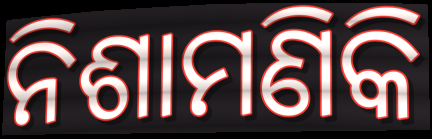
ନିଶାମଣିକି